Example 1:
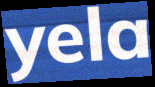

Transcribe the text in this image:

yela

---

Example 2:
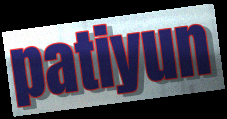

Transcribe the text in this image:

patiyun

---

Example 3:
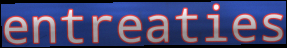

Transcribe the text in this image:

entreaties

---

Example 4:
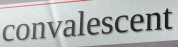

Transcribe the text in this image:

convalescent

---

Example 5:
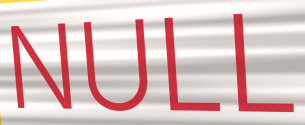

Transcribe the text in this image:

NULL